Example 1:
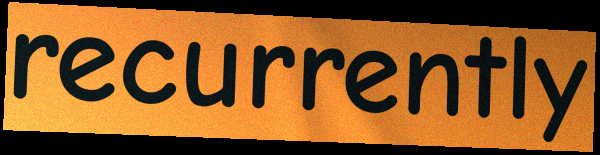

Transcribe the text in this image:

recurrently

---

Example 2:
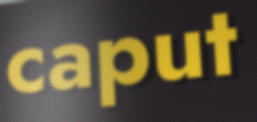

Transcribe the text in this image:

caput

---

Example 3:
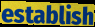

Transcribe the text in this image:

establish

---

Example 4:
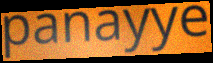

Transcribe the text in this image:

panayye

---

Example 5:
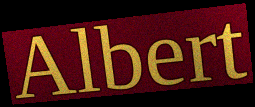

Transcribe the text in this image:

Albert